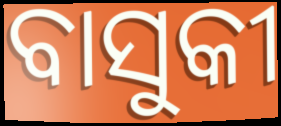
ବାସୁକୀ